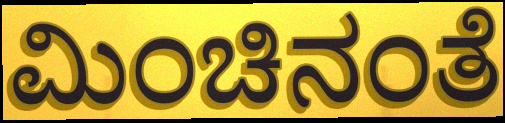
ಮಿಂಚಿನಂತೆ